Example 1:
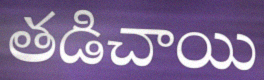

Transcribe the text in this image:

తడిచాయి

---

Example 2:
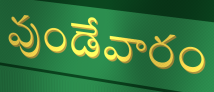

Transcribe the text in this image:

వుండేవారం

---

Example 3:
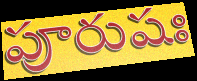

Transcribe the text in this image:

పూరుషః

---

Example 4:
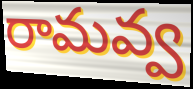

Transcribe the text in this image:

రామవ్వ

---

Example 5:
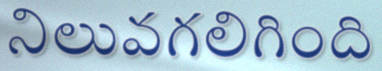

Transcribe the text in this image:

నిలువగలిగింది